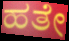
ಹತೇ